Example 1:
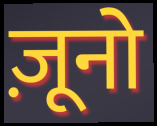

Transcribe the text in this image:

ज़ूनो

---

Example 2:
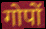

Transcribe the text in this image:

गोपों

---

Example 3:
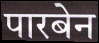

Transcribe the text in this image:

पारबेन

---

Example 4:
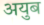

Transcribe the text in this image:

अयुब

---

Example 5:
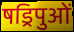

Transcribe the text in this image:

षड्रिपुओं